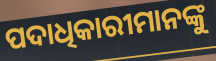
ପଦାଧିକାରୀମାନଙ୍କୁ